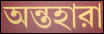
অন্তহারা